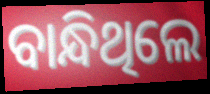
ବାନ୍ଧିଥିଲେ